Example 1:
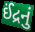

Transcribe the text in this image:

ઈંદ્રનું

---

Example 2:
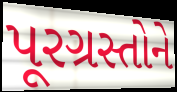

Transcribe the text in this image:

પૂરગ્રસ્તોને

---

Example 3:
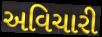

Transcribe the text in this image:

અવિચારી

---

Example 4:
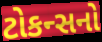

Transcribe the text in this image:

ટોકન્સનો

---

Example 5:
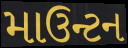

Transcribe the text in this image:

માઉન્ટન